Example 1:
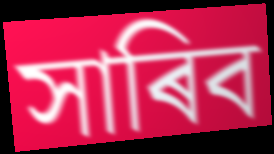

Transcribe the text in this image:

সাৰিব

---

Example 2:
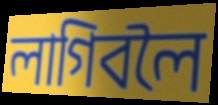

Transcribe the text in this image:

লাগিবলৈ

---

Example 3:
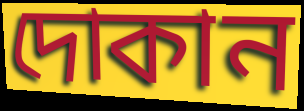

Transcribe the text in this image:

দোকান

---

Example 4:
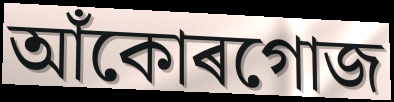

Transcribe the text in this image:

আঁকোৰগোজ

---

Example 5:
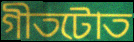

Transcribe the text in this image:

গীতটোত